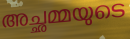
അച്ഛമ്മയുടെ